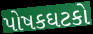
પોષકઘટકો